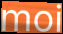
moi